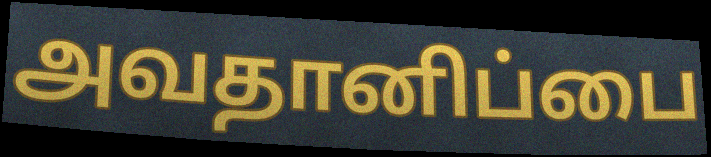
அவதானிப்பை